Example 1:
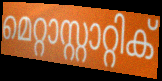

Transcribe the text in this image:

മെറ്റാസ്റ്റാറ്റിക്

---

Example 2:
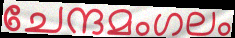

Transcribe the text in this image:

ചേന്ദമംഗലം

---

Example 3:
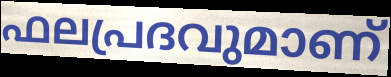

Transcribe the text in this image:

ഫലപ്രദവുമാണ്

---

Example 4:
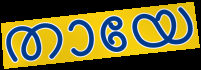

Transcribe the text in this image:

തായേ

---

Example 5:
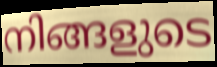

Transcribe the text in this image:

നിങ്ങളുടെ